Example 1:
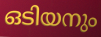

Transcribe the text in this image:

ഒടിയനും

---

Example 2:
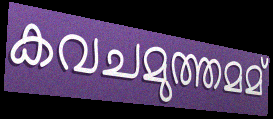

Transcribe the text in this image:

കവചമുത്തമമ്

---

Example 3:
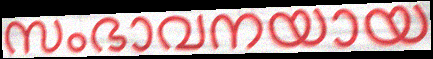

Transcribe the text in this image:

സംഭാവനയായ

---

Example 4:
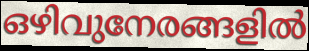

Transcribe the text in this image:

ഒഴിവുനേരങ്ങളിൽ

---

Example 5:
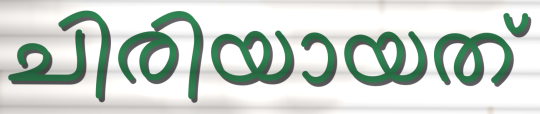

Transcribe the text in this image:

ചിരിയായത്